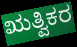
ಋತ್ವಿಕರ